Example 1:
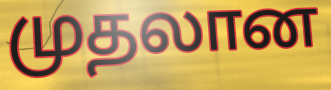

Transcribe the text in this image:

முதலான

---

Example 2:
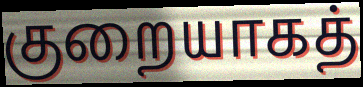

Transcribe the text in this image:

குறையாகத்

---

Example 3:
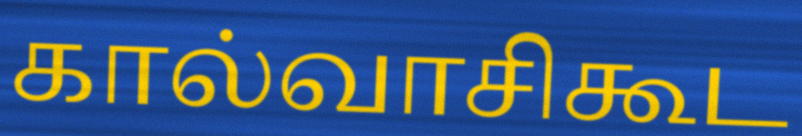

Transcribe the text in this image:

கால்வாசிகூட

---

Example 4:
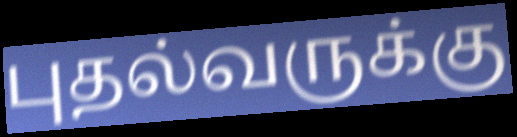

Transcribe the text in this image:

புதல்வருக்கு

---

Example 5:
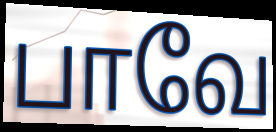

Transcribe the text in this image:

பாவே